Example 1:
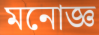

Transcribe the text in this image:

মনোজ্ঞ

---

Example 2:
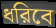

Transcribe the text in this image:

ধরিবে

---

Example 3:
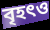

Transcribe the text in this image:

বৃহৎও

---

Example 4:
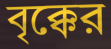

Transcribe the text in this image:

বৃক্কের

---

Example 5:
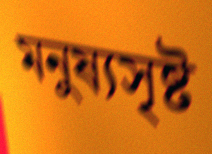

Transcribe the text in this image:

মনুষ্যসৃষ্ট